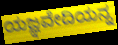
ಯಜ್ಞವೇದಿಯನ್ನ